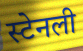
स्‍टेनली